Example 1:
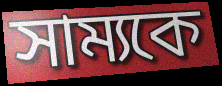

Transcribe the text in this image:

সাম্যকে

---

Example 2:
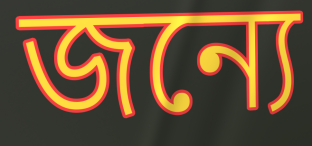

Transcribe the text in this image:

জন্যে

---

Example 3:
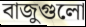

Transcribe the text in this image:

বাজুগুলো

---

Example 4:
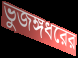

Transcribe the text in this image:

ভুজঙ্গধরের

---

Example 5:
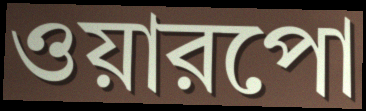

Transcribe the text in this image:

ওয়ারপো